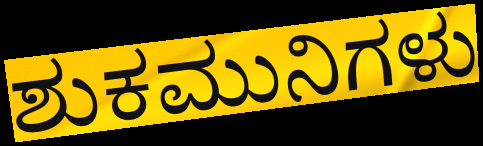
ಶುಕಮುನಿಗಳು